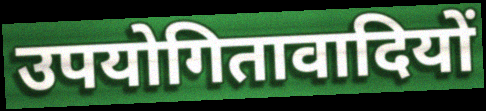
उपयोगितावादियों